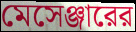
মেসেঞ্জারের